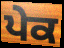
ਪੇਕ